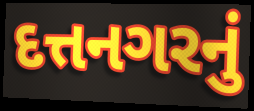
દત્તનગરનું